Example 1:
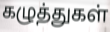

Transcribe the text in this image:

கழுத்துகள்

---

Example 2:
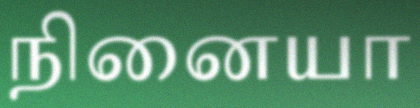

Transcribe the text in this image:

நினையா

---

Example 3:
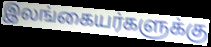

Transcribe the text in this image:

இலங்கையர்களுக்கு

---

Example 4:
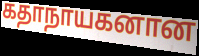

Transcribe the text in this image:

கதாநாயகனான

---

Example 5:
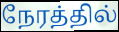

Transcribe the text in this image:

நேரத்தில்